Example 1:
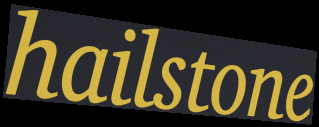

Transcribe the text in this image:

hailstone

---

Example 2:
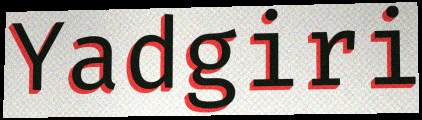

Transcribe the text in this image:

Yadgiri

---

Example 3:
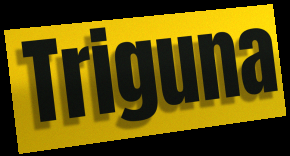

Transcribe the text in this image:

Triguna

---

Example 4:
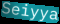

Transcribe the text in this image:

Seiyya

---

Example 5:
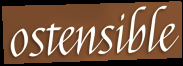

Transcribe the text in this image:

ostensible